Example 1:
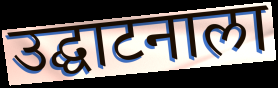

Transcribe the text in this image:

उद्घाटनाला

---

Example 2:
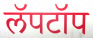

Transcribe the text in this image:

लॅपटॉप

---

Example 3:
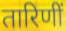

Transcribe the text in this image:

तारिणीं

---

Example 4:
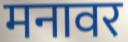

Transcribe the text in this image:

मनावर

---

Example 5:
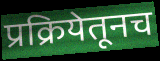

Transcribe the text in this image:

प्रक्रियेतूनच